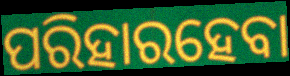
ପରିହାରହେବା